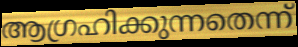
ആഗ്രഹിക്കുന്നതെന്ന്